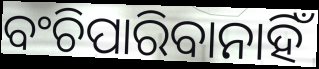
ବଂଚିପାରିବାନାହିଁ